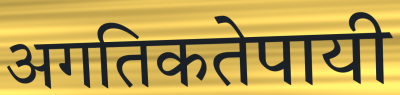
अगतिकतेपायी